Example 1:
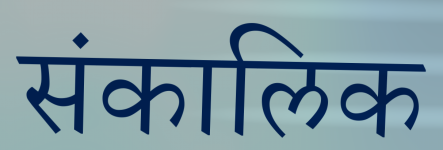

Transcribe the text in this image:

संकालिक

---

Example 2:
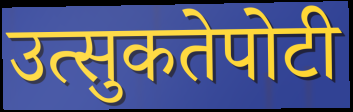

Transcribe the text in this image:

उत्सुकतेपोटी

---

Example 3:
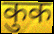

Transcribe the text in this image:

कुक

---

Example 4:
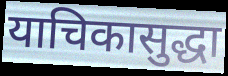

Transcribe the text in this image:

याचिकासुद्धा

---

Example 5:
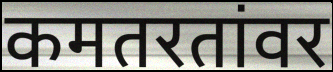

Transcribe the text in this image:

कमतरतांवर